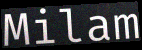
Milam